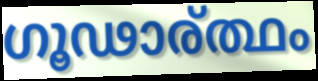
ഗൂഢാര്ത്ഥം